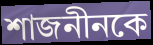
শাজনীনকে